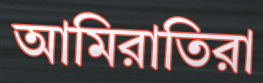
আমিরাতিরা